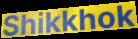
Shikkhok